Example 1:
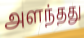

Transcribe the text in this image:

அளந்தது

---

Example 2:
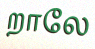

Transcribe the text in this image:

றாலே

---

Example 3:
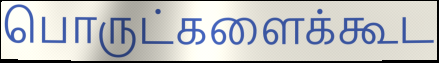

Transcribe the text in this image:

பொருட்களைக்கூட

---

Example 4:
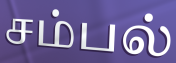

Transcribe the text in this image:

சம்பல்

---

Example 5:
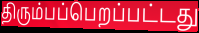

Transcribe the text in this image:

திரும்பப்பெறப்பட்டது